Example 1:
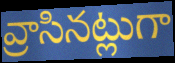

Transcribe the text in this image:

వ్రాసినట్లుగా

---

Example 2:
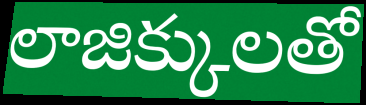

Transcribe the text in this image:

లాజిక్కులతో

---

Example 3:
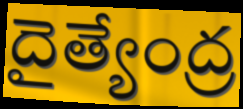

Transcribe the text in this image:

దైత్యేంద్ర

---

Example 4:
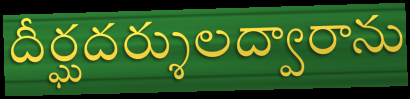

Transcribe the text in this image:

దీర్ఘదర్శులద్వారాను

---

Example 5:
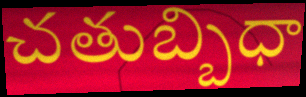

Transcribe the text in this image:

చతుబ్బిధా